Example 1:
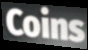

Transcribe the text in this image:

Coins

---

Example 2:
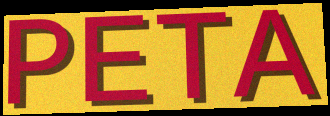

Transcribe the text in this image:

PETA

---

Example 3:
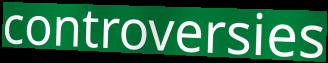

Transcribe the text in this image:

controversies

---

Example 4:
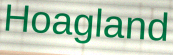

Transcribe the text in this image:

Hoagland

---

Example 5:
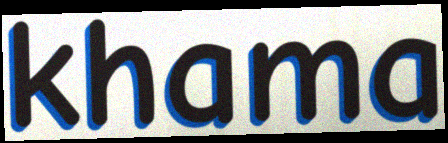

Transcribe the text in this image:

khama